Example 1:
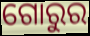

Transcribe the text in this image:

ଗୋରୁର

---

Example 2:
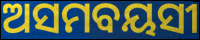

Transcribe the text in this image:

ଅସମବୟସୀ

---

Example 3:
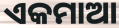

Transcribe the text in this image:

ଏକମାଆ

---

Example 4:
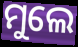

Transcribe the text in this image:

ମୁଲେ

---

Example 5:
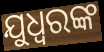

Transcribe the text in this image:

ଯୁଧ୍ଵରଙ୍କ